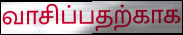
வாசிப்பதற்காக